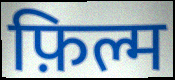
फ़िल्म